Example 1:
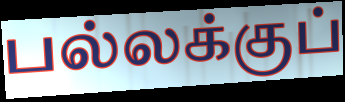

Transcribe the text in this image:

பல்லக்குப்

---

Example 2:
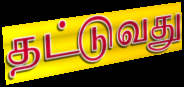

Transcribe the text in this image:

தட்டுவது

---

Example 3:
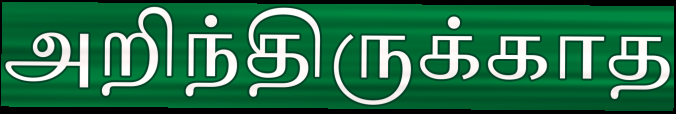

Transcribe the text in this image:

அறிந்திருக்காத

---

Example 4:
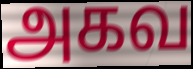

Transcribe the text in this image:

அகவ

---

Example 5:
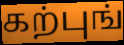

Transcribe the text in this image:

கற்புங்